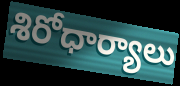
శిరోధార్యాలు